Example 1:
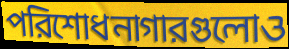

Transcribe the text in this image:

পরিশোধনাগারগুলোও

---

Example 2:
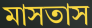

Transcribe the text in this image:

মাসতাস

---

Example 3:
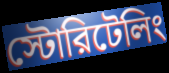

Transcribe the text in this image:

স্টোরিটেলিং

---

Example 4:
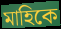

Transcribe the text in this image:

মাহিকে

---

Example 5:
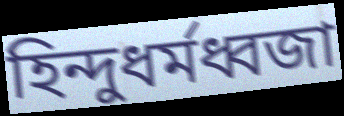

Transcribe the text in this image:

হিন্দুধর্মধ্বজা